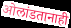
ओलांडतानाही